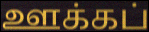
ஊக்கப்